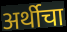
अर्थीचा